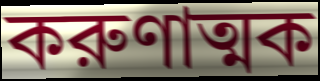
করুণাত্মক